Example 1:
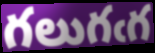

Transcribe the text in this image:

గలుగఁగ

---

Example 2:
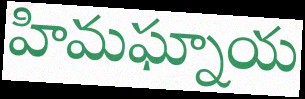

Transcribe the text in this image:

హిమఘ్నాయ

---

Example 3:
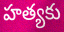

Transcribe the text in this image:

హత్యకు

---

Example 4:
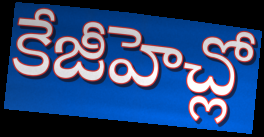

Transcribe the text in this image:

కేజీహెచ్లో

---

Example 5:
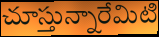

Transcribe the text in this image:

చూస్తున్నారేమిటి